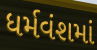
ધર્મવંશમાં